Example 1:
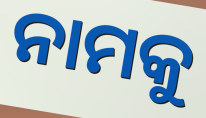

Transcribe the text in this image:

ନାମକୁ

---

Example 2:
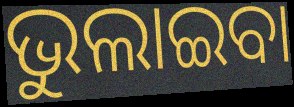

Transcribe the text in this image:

ଭୁଲାଇବା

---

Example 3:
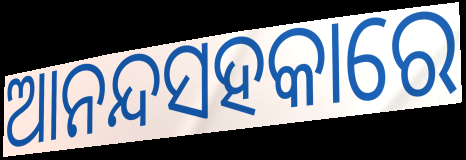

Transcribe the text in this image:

ଆନନ୍ଦସହକାରେ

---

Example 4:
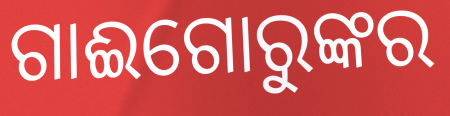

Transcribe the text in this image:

ଗାଈଗୋରୁଙ୍କର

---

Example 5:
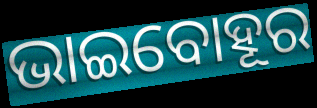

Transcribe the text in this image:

ଭାଇବୋହୂର